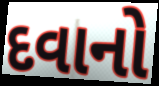
દવાનો